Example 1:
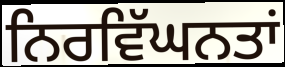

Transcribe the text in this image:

ਨਿਰਵਿੱਘਨਤਾਂ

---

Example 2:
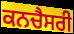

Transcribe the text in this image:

ਕਨਚੈਸਰੀ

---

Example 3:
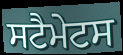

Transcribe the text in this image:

ਸਟੈਮੇਟਸ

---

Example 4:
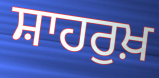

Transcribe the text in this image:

ਸ਼ਾਹਰੁਖ਼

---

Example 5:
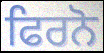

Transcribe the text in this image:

ਫਿਰਨੋ